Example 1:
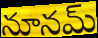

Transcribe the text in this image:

నూనమ్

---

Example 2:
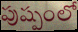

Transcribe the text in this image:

పుష్పంలో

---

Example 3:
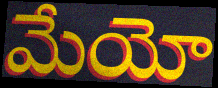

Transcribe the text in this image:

మేయో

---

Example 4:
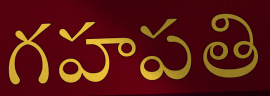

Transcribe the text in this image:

గహపతి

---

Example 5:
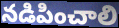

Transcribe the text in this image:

నడిపించాలి